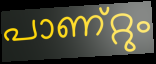
പാണ്റ്റും